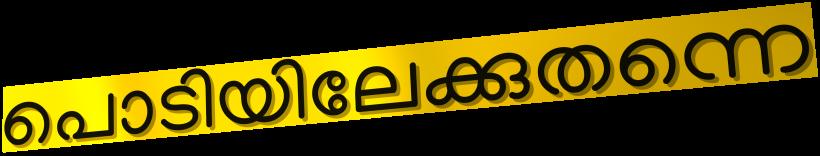
പൊടിയിലേക്കുതന്നെ